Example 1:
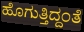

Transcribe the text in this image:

ಹೊಗುತ್ತಿದ್ದಂತೆ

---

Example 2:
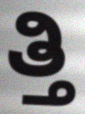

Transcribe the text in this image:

ತ್ತಿ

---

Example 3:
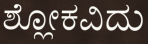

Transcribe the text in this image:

ಶ್ಲೋಕವಿದು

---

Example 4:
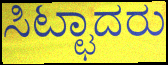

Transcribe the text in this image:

ಸಿಟ್ಟಾದರು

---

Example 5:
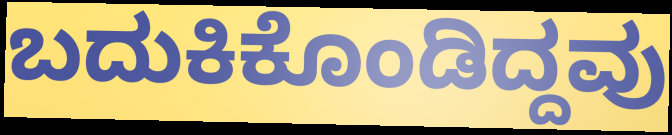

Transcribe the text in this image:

ಬದುಕಿಕೊಂಡಿದ್ದವು